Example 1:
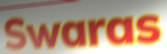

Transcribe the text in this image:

Swaras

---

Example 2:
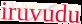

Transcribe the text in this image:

iruvudu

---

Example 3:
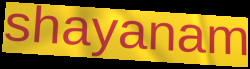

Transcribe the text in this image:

shayanam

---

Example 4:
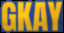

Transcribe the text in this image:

GKAY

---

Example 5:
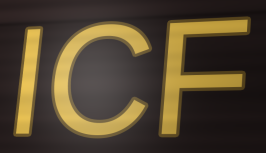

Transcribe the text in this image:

ICF